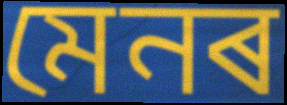
মেনৰ